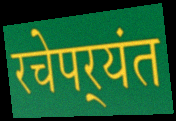
रचेपर्यंत